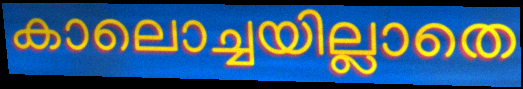
കാലൊച്ചയില്ലാതെ